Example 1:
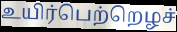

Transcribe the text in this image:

உயிர்பெற்றெழச்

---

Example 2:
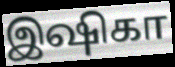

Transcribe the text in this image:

இஷிகா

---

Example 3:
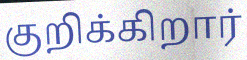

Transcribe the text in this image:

குறிக்கிறார்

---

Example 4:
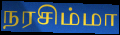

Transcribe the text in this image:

நரசிம்மா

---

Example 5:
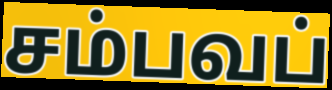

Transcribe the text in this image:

சம்பவப்